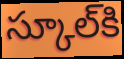
స్కూల్‌కి